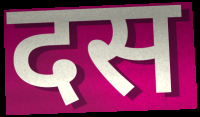
दस